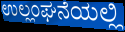
ಉಲ್ಲಂಘನೆಯಲ್ಲಿ